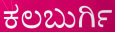
ಕಲಬುರ್ಗಿ